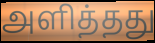
அளித்தது